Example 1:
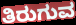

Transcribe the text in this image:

ತಿರುಗುವ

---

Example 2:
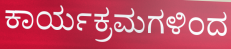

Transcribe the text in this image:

ಕಾರ್ಯಕ್ರಮಗಳಿಂದ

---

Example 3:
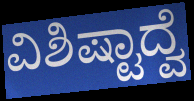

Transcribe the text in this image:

ವಿಶಿಷ್ಟಾದ್ವೆ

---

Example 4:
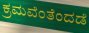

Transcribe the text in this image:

ಕ್ರಮವೆಂತೆಂದಡೆ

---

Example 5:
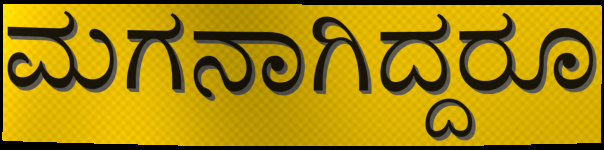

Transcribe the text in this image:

ಮಗನಾಗಿದ್ದರೂ